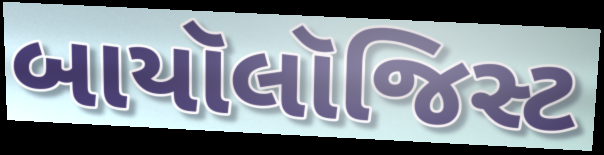
બાયૉલૉજિસ્ટ